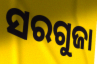
ସରଗୁଜା